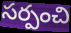
సర్పంచి